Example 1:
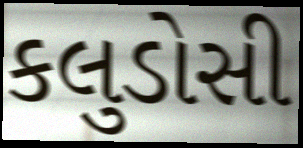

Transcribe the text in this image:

કલુડોસી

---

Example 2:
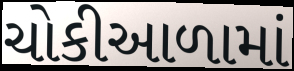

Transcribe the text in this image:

ચોકીઆળામાં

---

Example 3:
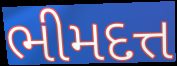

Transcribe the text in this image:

ભીમદત્ત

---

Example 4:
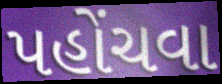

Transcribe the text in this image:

પહોંચવા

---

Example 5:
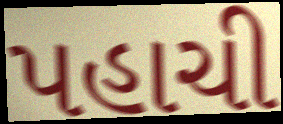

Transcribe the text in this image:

પહાચી